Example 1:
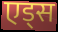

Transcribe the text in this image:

एड्स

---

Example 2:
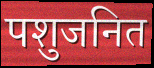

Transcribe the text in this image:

पशुजनित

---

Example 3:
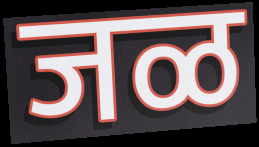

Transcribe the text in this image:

जळ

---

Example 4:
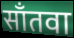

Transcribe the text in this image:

साँतवा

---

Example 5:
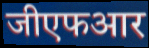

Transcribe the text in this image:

जीएफआर